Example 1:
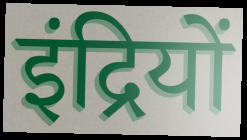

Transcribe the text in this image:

इंद्रियों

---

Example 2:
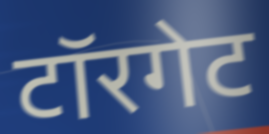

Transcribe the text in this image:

टॉरगेट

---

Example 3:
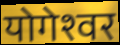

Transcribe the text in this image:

योगेश्वर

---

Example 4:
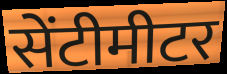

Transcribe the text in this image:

सेंटीमीटर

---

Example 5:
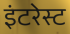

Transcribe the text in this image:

इंटरेस्ट